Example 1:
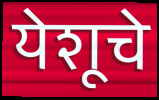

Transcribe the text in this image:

येशूचे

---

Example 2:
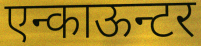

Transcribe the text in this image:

एन्काऊन्टर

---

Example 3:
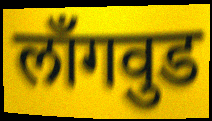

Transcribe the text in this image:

लाँगवुड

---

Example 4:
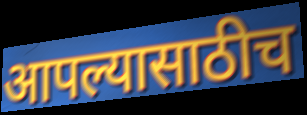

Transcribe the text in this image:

आपल्यासाठीच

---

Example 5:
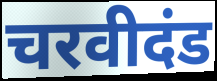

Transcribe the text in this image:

चरवीदंड